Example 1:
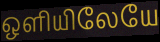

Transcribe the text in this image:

ஒளியிலேயே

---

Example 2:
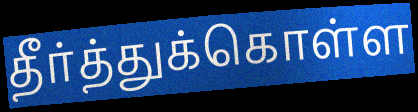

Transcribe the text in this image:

தீர்த்துக்கொள்ள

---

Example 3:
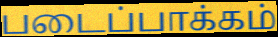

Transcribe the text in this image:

படைப்பாக்கம்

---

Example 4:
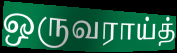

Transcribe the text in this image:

ஒருவராய்த்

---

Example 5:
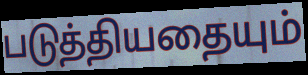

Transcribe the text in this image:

படுத்தியதையும்